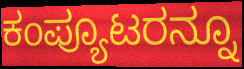
ಕಂಪ್ಯೂಟರನ್ನೂ